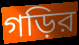
গড়ির